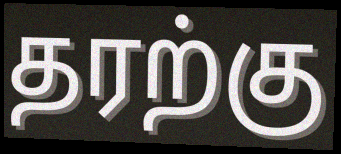
தரற்கு